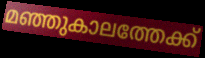
മഞ്ഞുകാലത്തേക്ക്